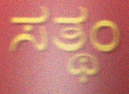
ಸತ್ಥಂ